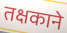
तक्षकाने